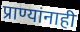
प्राण्यांनाही